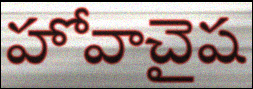
హోవాచైష